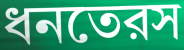
ধনতেরস